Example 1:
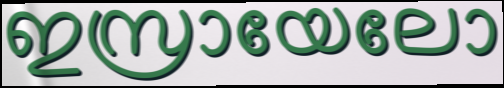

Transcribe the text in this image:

ഇസ്രായേലോ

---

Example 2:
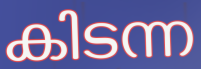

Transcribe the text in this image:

കിടന്ന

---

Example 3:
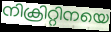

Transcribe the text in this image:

നിക്രിറ്റിനയെ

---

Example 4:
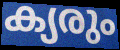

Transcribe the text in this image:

ക്യരും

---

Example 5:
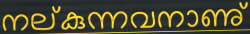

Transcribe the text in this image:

നല്കുന്നവനാണു്